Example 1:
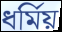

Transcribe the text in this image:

ধর্মিয়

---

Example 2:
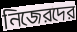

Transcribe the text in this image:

নিজেরদের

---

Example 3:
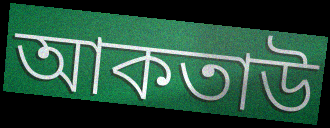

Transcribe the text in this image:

আকতাউ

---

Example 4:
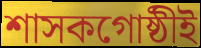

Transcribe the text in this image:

শাসকগোষ্ঠীই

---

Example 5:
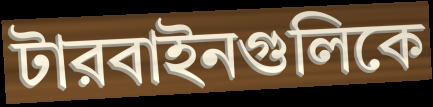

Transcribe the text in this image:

টারবাইনগুলিকে